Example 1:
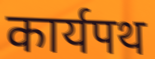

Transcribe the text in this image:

कार्यपथ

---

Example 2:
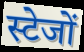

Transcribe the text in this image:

स्टेजों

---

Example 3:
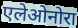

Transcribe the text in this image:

एलेओनोरा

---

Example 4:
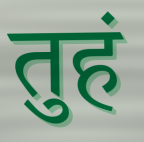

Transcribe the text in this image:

तुहं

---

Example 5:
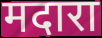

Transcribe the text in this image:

मदारा